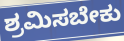
ಶ್ರಮಿಸಬೇಕು